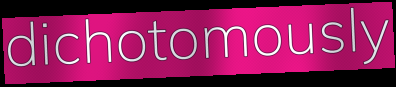
dichotomously